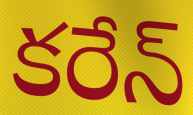
కరేన్